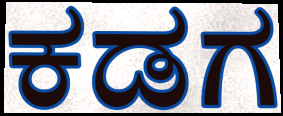
ಕಡಗ